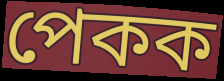
পেকক